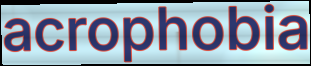
acrophobia